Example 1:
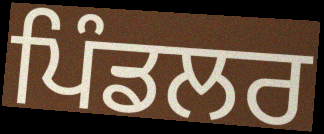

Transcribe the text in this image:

ਪਿੰਡਲਰ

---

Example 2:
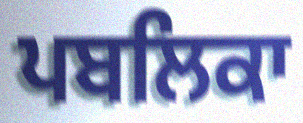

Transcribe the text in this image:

ਪਬਲਿਕਾ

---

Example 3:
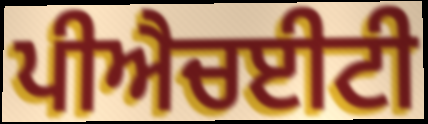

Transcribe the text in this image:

ਪੀਐਚਈਟੀ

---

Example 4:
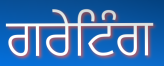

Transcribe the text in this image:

ਗਰੇਟਿੰਗ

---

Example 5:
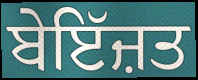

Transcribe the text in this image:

ਬੇਇੱਜ਼ਤ